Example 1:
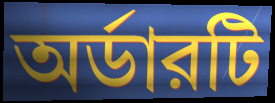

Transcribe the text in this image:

অর্ডারটি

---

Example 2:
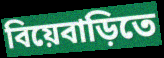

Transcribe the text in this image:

বিয়েবাড়িতে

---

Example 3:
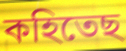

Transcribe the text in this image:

কহিতেছ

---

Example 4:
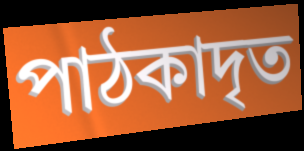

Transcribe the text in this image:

পাঠকাদৃত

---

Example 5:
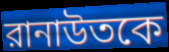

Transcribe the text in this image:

রানাউতকে